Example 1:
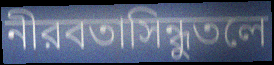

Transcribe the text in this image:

নীরবতাসিন্ধুতলে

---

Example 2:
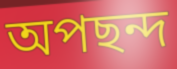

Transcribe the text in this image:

অপছন্দ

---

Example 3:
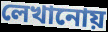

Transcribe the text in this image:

লেখানোয়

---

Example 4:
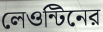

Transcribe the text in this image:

লেওন্টিনের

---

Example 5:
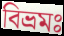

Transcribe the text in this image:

বিভ্রমঃ